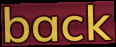
back